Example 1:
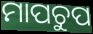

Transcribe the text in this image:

ମାପଚୁପ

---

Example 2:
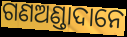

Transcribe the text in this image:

ଗଣଅଣ୍ଡାଦାନେ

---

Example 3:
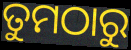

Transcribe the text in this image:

ତୁମଠାରୁ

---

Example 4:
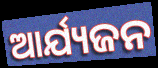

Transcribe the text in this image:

ଆର୍ଯ୍ୟଜନ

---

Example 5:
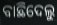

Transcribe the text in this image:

ବାଛିଦେଲୁ